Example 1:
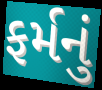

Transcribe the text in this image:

ફર્મનું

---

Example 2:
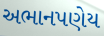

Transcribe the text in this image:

અભાનપણેય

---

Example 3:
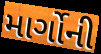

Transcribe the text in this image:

માર્ગોની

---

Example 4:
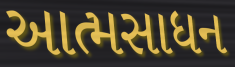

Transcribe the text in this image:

આત્મસાધન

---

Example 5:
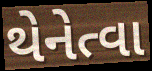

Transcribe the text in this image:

થેનેત્વા